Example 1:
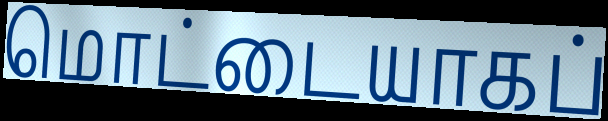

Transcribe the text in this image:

மொட்டையாகப்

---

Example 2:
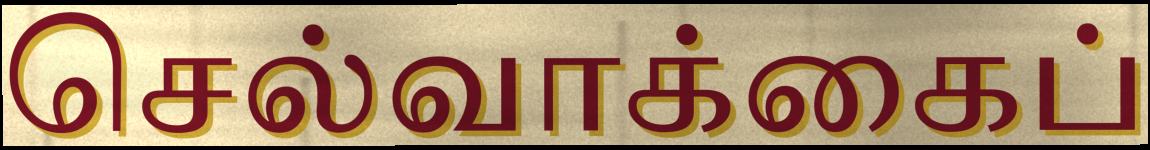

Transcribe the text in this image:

செல்வாக்கைப்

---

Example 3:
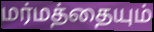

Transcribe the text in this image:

மர்மத்தையும்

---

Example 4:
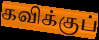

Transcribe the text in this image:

கவிக்குப்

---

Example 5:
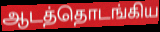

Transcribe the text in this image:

ஆடத்தொடங்கிய